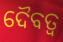
ଦୈବତ୍ଵ